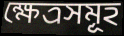
ক্ষেত্ৰসমূহ